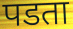
पडता